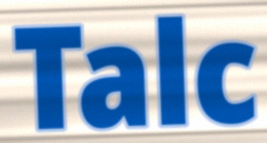
Talc